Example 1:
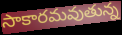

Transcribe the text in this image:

సాకారమవుతున్న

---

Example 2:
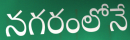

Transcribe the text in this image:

నగరంలోనే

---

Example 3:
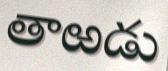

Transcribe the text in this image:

తాఱడు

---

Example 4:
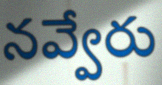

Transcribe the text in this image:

నవ్వేరు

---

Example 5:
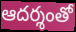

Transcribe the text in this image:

ఆదర్శంతో